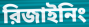
রিজাইনিং